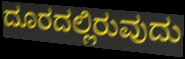
ದೂರದಲ್ಲಿರುವುದು